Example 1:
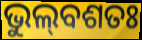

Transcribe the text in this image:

ଭୁଲ୍‌ବଶତଃ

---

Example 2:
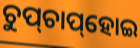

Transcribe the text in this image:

ଚୁପ୍‌ଚାପ୍‌ହୋଇ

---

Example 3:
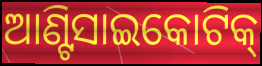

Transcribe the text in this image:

ଆଣ୍ଟିସାଇକୋଟିକ୍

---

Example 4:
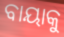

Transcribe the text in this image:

ବାୟାକୁ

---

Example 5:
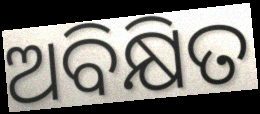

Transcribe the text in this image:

ଅବିକ୍ଷିତ